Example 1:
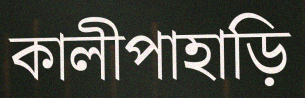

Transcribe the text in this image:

কালীপাহাড়ি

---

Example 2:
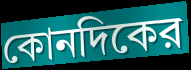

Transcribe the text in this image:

কোনদিকের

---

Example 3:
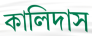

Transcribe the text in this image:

কালিদাস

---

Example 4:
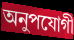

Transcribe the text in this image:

অনুপযোগী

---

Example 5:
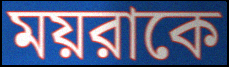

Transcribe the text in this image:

ময়রাকে